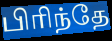
பிரிந்தே